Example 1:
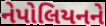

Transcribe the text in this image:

નેપોલિયનને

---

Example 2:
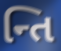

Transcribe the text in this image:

ન્તિ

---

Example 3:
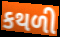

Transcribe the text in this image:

કથળી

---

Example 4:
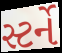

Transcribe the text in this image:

સ્ટર્ને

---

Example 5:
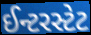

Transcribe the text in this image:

ઈન્ટરસ્ટેટ